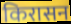
किरासन